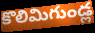
కొలిమిగుండ్ల